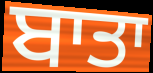
ਬਾਤਾ